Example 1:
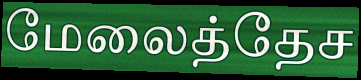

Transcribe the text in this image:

மேலைத்தேச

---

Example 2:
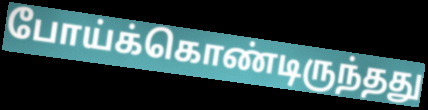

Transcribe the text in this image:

போய்க்கொண்டிருந்தது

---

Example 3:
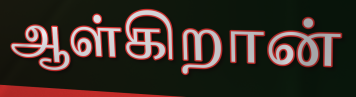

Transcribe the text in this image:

ஆள்கிறான்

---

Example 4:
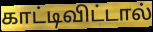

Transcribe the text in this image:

காட்டிவிட்டால்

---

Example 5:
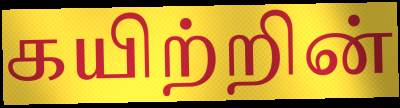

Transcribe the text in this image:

கயிற்றின்